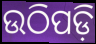
ଉଠିପଡ଼ି